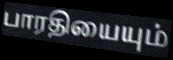
பாரதியையும்